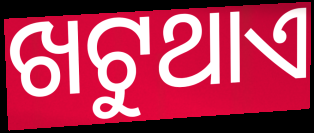
ଖଟୁଥାଏ